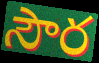
సౌర